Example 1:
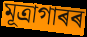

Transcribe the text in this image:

মূত্ৰাগাৰৰ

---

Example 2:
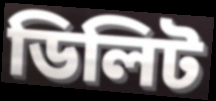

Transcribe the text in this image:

ডিলিট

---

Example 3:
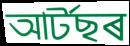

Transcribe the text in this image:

আৰ্টছৰ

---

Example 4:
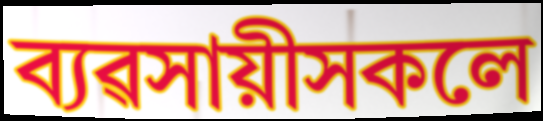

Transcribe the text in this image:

ব্যৱসায়ীসকলে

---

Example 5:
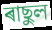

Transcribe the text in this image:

ৰাছুল